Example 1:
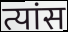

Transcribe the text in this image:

त्यांस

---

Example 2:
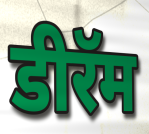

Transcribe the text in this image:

डीरॅम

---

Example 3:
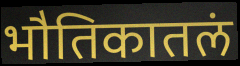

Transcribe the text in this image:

भौतिकातलं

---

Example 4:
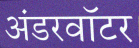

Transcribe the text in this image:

अंडरवॉटर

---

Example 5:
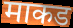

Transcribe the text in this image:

माकड